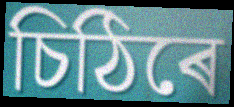
চিঠিৰে